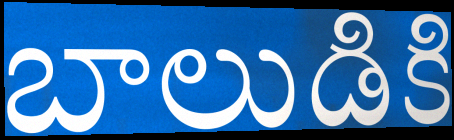
బాలుడికి